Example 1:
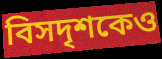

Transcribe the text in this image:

বিসদৃশকেও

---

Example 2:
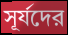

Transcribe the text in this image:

সূর্যদের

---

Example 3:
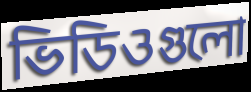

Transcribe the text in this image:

ভিডিওগুলো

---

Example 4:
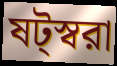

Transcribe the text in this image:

ষট্স্বরা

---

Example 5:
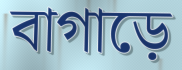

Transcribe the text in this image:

বাগাড়ে